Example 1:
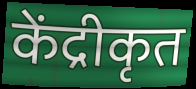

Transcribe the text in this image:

केंद्रीकृत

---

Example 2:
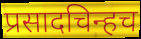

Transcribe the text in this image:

प्रसादचिन्हच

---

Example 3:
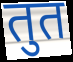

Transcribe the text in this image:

तुत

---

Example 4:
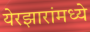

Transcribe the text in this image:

येरझारांमध्ये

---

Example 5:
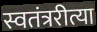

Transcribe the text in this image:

स्वतंत्ररीत्या